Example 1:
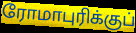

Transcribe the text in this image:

ரோமாபுரிக்குப்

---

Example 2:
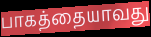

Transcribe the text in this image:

பாகத்தையாவது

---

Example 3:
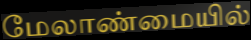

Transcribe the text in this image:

மேலாண்மையில்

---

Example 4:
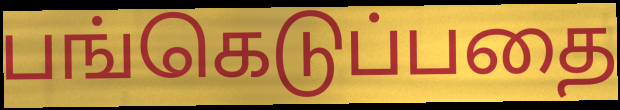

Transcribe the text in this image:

பங்கெடுப்பதை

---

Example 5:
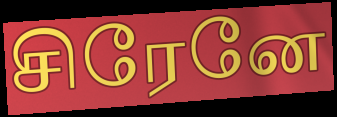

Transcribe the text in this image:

சிரேனே